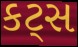
કટ્સ